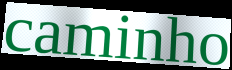
caminho